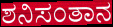
ಶನಿಸಂತಾನ